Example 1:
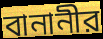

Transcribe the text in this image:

বানানীর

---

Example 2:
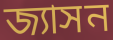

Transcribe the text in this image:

জ্যাসন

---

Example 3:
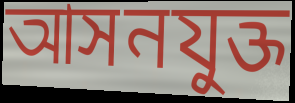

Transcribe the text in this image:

আসনযুক্ত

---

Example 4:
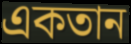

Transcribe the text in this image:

একতান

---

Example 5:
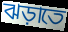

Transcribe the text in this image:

ঝড়াতে